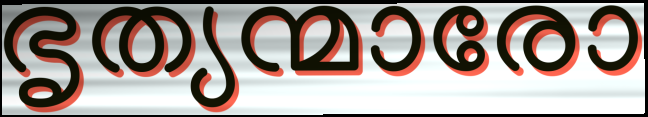
ഭൃത്യന്മാരോ